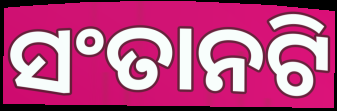
ସଂତାନଟି